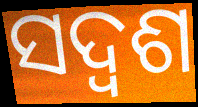
ସଦ୍ଵଶ